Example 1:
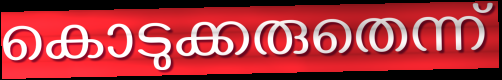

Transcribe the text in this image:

കൊടുക്കരുതെന്ന്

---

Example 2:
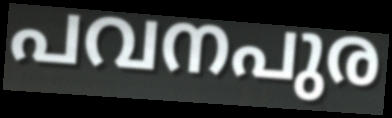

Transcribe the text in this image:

പവനപുര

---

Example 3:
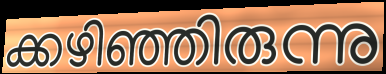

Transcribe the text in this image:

ക്കഴിഞ്ഞിരുന്നു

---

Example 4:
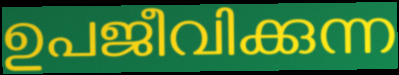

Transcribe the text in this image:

ഉപജീവിക്കുന്ന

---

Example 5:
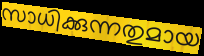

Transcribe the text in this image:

സാധിക്കുന്നതുമായ